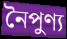
নৈপুণ্য